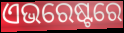
ଏଭରେଷ୍ଟରେ